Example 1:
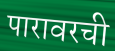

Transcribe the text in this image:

पारावरची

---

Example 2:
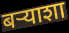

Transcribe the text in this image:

बऱ्याशा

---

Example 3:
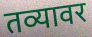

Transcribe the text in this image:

तव्यावर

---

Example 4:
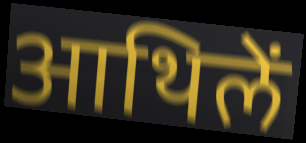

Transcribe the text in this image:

आथिलें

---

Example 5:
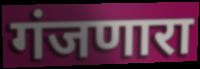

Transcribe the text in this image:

गंजणारा